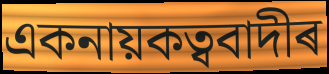
একনায়কত্ববাদীৰ